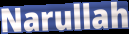
Narullah